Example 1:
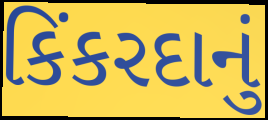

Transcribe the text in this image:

કિંકરદાનું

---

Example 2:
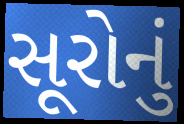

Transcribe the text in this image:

સૂરોનું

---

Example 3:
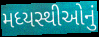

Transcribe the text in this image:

મધ્યસ્થીઓનું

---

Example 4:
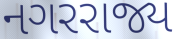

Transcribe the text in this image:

નગરરાજ્ય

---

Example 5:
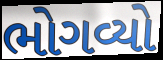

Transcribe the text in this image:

ભોગવ્યો